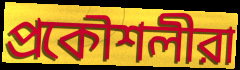
প্রকৌশলীরা